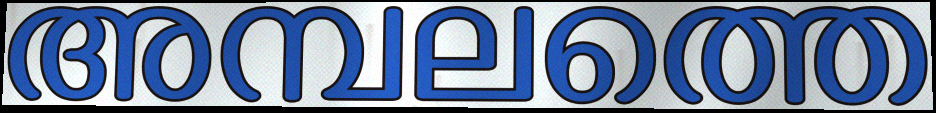
അമ്പലത്തെ